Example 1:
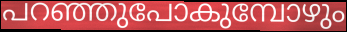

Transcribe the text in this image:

പറഞ്ഞുപോകുമ്പോഴും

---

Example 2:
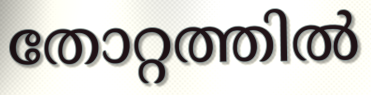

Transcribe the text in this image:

തോറ്റത്തിൽ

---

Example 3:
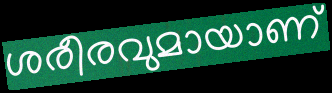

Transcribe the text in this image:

ശരീരവുമായാണ്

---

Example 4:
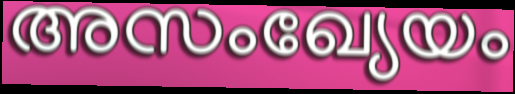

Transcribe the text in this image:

അസംഖ്യേയം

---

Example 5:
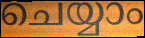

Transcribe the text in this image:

ചെയ്യാം